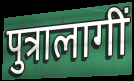
पुत्रालागीं